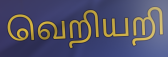
வெறியறி